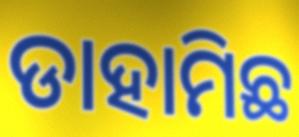
ଡାହାମିଛ